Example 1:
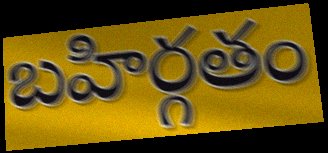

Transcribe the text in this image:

బహిర్గతం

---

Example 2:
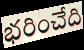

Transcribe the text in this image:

భరించేది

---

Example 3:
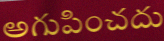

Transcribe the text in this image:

అగుపించదు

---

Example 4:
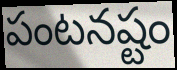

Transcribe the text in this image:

పంటనష్టం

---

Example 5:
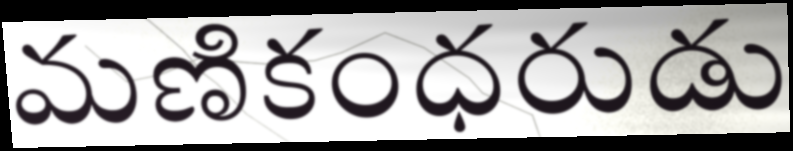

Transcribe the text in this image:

మణికంధరుడు